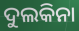
ଦୁଲକିନା